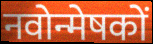
नवोन्‍मेषकों